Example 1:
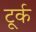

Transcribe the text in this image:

टूर्क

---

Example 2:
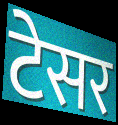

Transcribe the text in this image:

टेसर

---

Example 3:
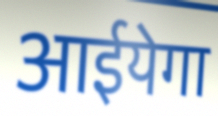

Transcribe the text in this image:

आईयेगा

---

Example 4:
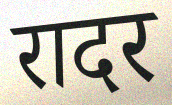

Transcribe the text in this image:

रादर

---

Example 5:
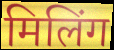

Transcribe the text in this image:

मिलिंग